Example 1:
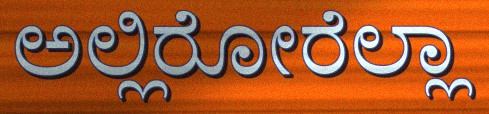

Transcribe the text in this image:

ಅಲ್ಲಿರೋರೆಲ್ಲಾ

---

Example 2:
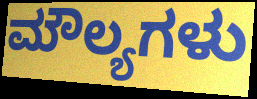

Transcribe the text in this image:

ಮೌಲ್ಯಗಳು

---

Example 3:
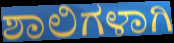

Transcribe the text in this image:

ಶಾಲಿಗಳಾಗಿ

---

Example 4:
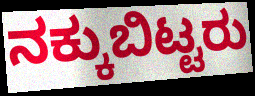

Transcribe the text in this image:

ನಕ್ಕುಬಿಟ್ಟರು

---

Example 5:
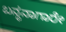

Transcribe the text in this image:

ಬನ್ಧನಾಗಾರೇ